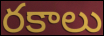
రకాలు